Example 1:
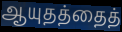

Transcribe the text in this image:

ஆயுதத்தைத்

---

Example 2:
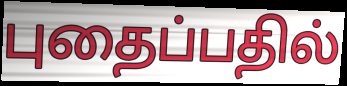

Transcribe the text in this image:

புதைப்பதில்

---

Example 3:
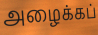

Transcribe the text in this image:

அழைக்கப்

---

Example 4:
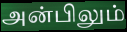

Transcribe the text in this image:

அன்பிலும்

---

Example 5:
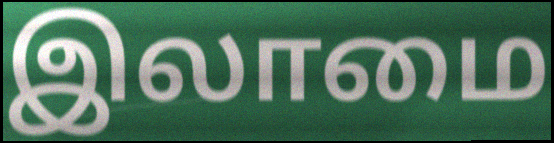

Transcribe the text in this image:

இலாமை